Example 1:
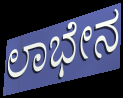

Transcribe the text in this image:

ಲಾಭೇನ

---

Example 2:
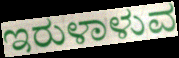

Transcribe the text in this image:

ಇರುಳಾಳುವ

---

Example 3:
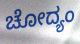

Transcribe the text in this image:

ಚೋದ್ಯಂ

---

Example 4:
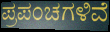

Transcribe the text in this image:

ಪ್ರಪಂಚಗಳಿವೆ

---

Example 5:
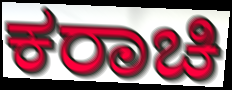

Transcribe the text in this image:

ಕರಾಚಿ